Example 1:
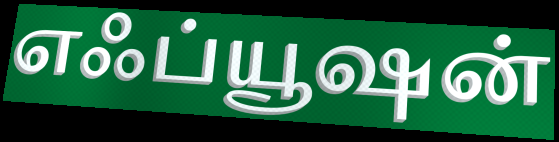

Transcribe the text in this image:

எஃப்யூஷன்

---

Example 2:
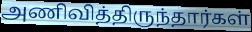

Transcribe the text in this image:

அணிவித்திருந்தார்கள்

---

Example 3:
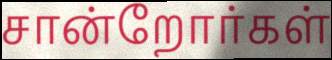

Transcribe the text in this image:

சான்றோர்கள்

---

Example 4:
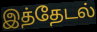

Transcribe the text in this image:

இத்தேடல்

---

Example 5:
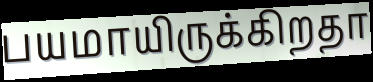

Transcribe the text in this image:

பயமாயிருக்கிறதா